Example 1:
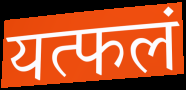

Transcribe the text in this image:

यत्फलं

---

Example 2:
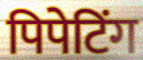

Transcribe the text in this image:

पिपेटिंग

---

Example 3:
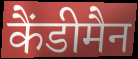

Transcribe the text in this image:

कैंडीमैन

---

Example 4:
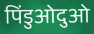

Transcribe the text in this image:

पिंडुओदुओ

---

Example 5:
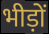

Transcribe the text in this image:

भीड़ों